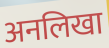
अनलिखा